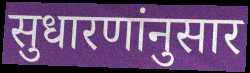
सुधारणांनुसार